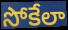
సోకేలా